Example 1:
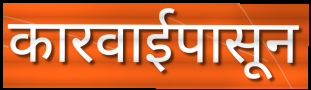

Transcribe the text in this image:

कारवाईपासून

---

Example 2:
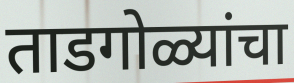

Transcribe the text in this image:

ताडगोळ्यांचा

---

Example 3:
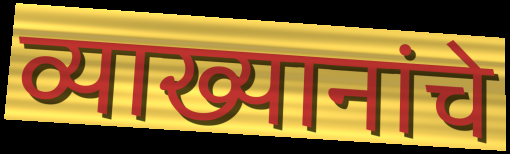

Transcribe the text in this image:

व्याख्यानांचे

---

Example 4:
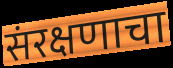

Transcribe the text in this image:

संरक्षणाचा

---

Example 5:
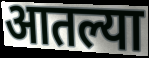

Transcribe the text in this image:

आतल्या